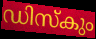
ഡിസ്കും